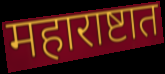
महाराष्टात